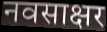
नवसाक्षर